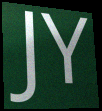
JY